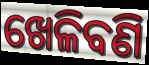
ଖେଳିବଣି